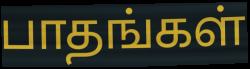
பாதங்கள்